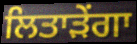
ਲਿਤਾੜੇਂਗਾ